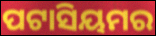
ପଟାସିୟମର